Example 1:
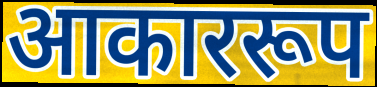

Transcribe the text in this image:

आकाररूप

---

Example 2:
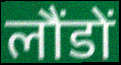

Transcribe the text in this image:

लौंडों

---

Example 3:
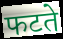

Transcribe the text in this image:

फटते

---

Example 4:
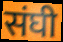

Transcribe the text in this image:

संघी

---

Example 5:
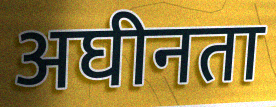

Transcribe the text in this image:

अघीनता